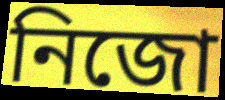
নিজো